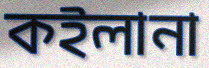
কইলানা